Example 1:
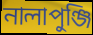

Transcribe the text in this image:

নালাপুঞ্জি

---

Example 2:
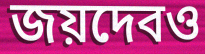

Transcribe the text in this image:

জয়দেবও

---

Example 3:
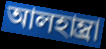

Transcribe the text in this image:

আলহাম্ব্রা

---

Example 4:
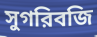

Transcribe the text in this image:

সুগরিবজি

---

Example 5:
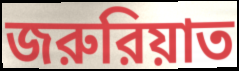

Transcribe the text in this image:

জরুরিয়াত